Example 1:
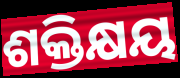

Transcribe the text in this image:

ଶକ୍ତିକ୍ଷୟ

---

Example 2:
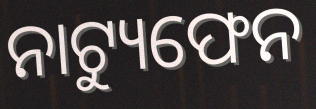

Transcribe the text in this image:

ନାଟ୍ୟୁଫେନ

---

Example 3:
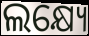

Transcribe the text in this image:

ଲକ୍ଷ୍ୟେ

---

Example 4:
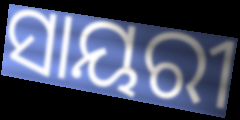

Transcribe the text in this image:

ସାୟରୀ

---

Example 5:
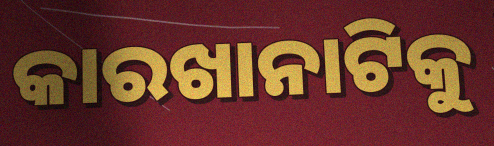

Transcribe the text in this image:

କାରଖାନାଟିକୁ